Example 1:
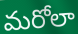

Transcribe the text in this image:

మరోలా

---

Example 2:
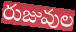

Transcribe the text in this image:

రుజువుల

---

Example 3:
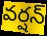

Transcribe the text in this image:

వర్షన్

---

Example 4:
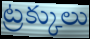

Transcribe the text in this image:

ట్రక్కులు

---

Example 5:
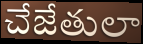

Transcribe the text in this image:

చేజేతులా